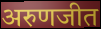
अरुणजीत